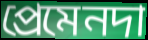
প্রেমেনদা